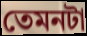
তেমনটা